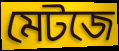
মেটজে